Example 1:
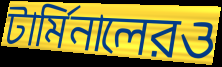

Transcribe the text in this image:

টার্মিনালেরও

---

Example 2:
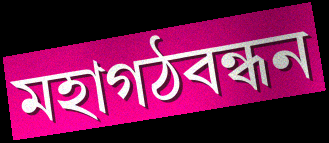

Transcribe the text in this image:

মহাগঠবন্ধন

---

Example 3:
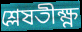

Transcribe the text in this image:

শ্লেষতীক্ষ্ণ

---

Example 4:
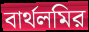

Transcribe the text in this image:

বার্থলমির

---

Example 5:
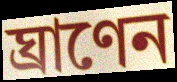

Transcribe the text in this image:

ঘ্রাণেন